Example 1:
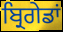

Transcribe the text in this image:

ਬ੍ਰਿਗੇਡਾਂ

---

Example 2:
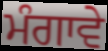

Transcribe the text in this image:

ਮੰਗਾਵੇ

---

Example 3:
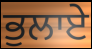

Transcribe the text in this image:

ਭੁਲਾਏ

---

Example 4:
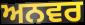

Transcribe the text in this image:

ਅਨਵਰ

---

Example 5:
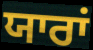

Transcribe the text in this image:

ਯਾਰਾਂ